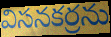
విసనకర్రను